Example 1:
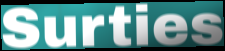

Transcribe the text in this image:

Surties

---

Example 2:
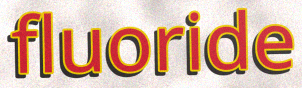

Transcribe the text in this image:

fluoride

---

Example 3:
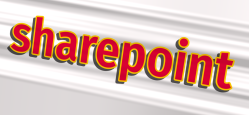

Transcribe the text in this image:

sharepoint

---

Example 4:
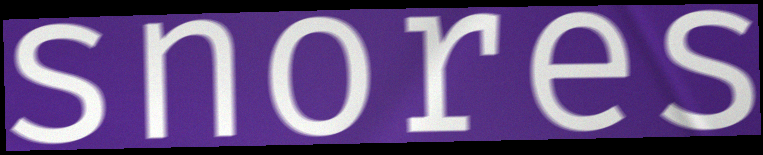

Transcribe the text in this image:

snores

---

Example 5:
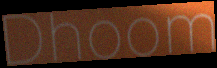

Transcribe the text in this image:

Dhoom